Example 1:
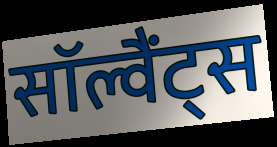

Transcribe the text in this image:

सॉल्वैंट्स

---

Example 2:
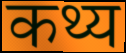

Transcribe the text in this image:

कथ्य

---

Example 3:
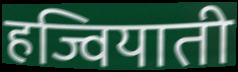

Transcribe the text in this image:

हज्वियाती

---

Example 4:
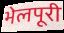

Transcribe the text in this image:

भेलपूरी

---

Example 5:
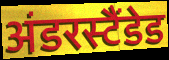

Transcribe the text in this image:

अंडरस्टैंडेड